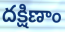
దక్షిణాం